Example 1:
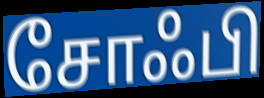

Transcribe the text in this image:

சோஃபி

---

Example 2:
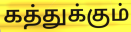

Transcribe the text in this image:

கத்துக்கும்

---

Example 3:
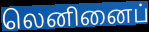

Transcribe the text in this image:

லெனினைப்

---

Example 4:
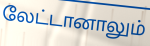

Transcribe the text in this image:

லேட்டானாலும்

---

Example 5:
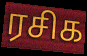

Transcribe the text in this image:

ரசிக